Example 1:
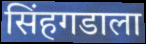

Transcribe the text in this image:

सिंहगडाला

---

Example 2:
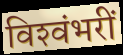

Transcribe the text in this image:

विश्वंभरीं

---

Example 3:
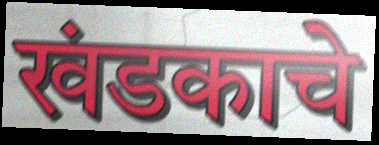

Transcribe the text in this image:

खंडकाचे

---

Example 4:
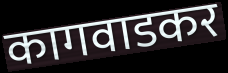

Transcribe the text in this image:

कागवाडकर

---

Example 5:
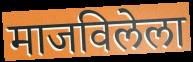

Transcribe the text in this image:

माजविलेला